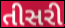
તીસરી